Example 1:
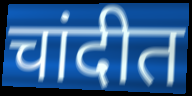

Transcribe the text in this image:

चांदीत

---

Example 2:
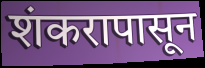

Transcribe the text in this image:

शंकरापासून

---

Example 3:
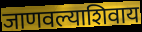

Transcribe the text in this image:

जाणवल्याशिवाय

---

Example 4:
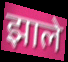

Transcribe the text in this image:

झाले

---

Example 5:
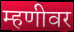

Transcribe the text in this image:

म्हणीवर